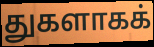
துகளாகக்